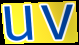
uv